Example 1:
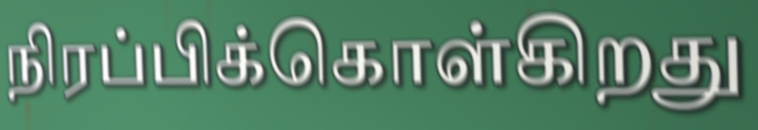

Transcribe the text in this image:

நிரப்பிக்கொள்கிறது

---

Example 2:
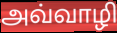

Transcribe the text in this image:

அவ்வாழி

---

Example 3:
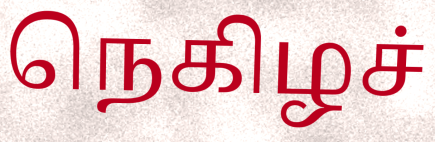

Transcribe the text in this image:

நெகிழச்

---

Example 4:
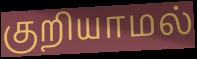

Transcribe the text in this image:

குறியாமல்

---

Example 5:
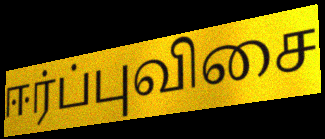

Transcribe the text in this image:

ஈர்ப்புவிசை